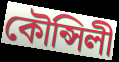
কৌন্সিলী